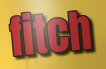
fitch